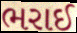
ભરાઈ